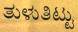
ತುಳುತಿಟ್ಟು